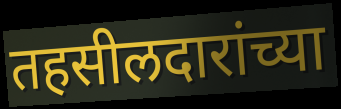
तहसीलदारांच्या